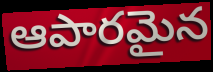
ఆపారమైన